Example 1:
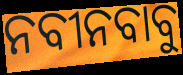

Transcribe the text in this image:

ନବୀନବାବୁ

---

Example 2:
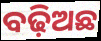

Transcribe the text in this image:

ବଢ଼ିଅଛ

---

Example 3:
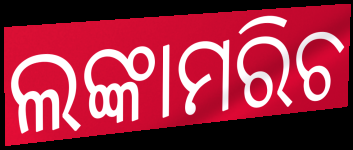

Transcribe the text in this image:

ଲଙ୍କାମରିଚ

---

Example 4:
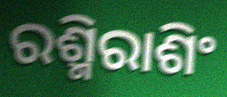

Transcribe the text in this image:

ରଶ୍ମିରାଶିଂ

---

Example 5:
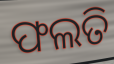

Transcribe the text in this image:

ଫଲତି